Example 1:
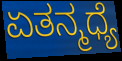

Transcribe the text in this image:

ಏತನ್ಮಧ್ಯೆ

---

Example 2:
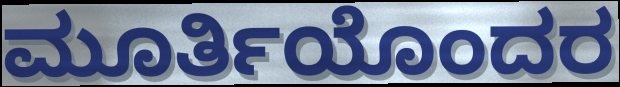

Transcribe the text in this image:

ಮೂರ್ತಿಯೊಂದರ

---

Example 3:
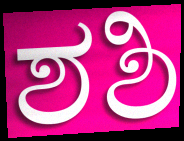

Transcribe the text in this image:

ಶಶಿ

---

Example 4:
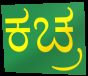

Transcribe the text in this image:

ಕಚ್ರ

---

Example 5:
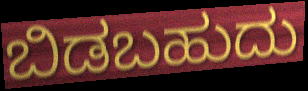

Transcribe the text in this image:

ಬಿಡಬಹುದು